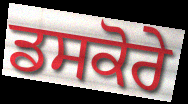
ਡਸਕੋਰੇ